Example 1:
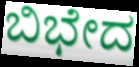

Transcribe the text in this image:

ಬಿಭೇದ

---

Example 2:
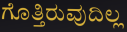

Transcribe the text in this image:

ಗೊತ್ತಿರುವುದಿಲ್ಲ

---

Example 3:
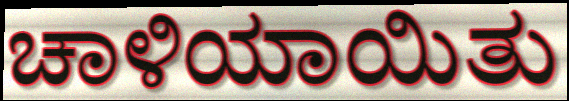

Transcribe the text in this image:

ಚಾಳಿಯಾಯಿತು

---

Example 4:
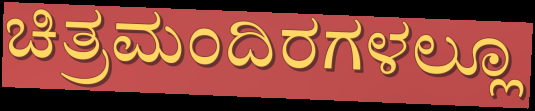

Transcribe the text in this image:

ಚಿತ್ರಮಂದಿರಗಳಲ್ಲೂ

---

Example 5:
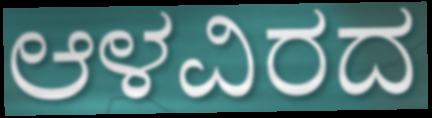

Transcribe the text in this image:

ಆಳವಿರದ